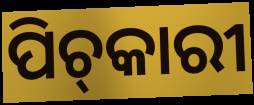
ପିଚ୍‌କାରୀ